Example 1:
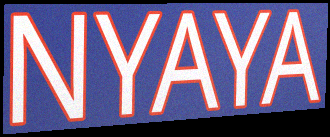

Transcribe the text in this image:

NYAYA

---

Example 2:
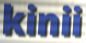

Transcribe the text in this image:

kinii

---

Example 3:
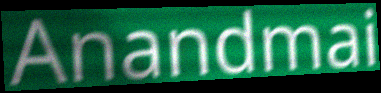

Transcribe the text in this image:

Anandmai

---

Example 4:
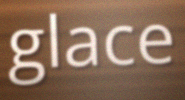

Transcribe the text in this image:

glace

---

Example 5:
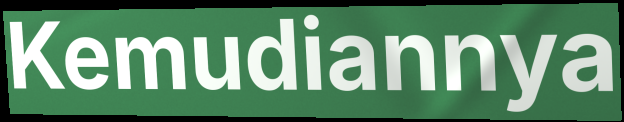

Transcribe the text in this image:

Kemudiannya